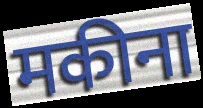
मकीना